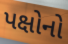
પક્ષોનો